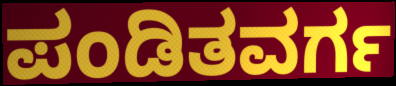
ಪಂಡಿತವರ್ಗ